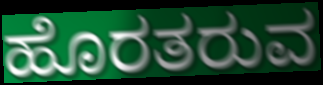
ಹೊರತರುವ